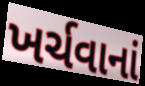
ખર્ચવાનાં